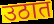
उठात